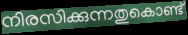
നിരസിക്കുന്നതുകൊണ്ട്